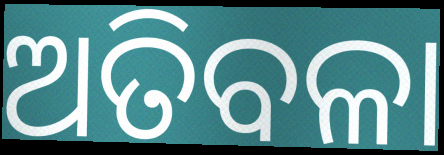
ଅତିବଳା